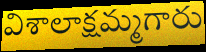
విశాలాక్షమ్మగారు